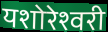
यशोरेश्वरी